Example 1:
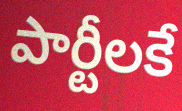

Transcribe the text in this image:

పార్టీలకే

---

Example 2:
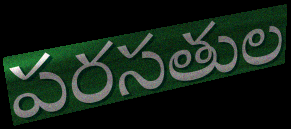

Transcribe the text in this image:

పరసతుల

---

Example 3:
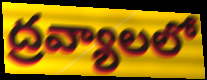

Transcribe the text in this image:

ద్రవ్యాలలో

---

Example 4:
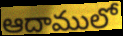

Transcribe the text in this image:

ఆదాములో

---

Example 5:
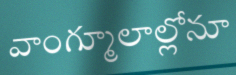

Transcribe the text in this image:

వాంగ్మూలాల్లోనూ